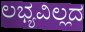
ಲಭ್ಯವಿಲ್ಲದ